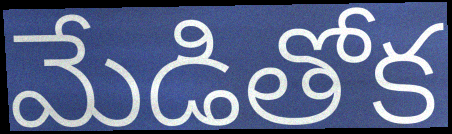
మేడితోక